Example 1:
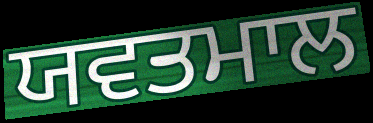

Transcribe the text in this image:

ਯਵਤਮਾਲ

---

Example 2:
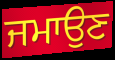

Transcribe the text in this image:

ਜਮਾਉਣ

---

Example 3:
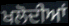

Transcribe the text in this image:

ਖਲੋਦੀਆਂ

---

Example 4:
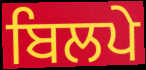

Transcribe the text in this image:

ਬਿਲਪੇ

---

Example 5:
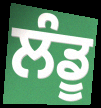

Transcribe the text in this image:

ਲੰਡੂ